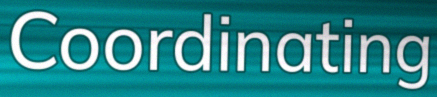
Coordinating